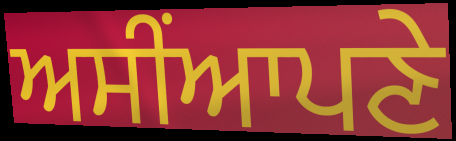
ਅਸੀਂਆਪਣੇ